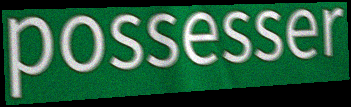
possesser